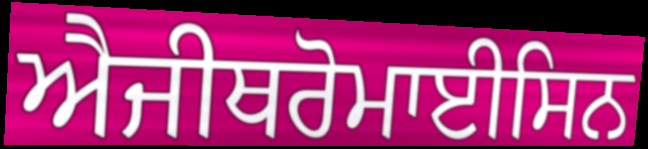
ਐਜੀਥਰੋਮਾਈਸਿਨ